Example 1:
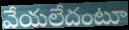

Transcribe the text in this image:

వేయలేదంటూ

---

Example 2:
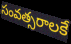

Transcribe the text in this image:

సంవత్సరాలకే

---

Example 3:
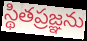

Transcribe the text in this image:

స్థితప్రజ్ఞను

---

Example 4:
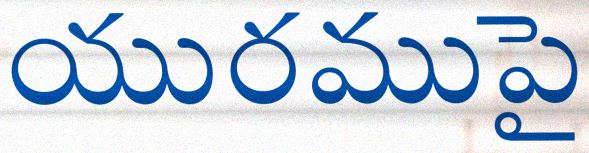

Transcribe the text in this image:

యురముపై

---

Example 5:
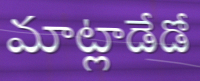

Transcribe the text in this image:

మాట్లాడేడో